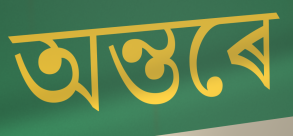
অন্তৰে